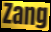
Zang